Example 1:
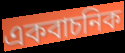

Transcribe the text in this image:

একবাচনিক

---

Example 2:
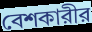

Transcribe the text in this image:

বেশকারীর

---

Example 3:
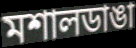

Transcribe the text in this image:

মশালডাঙা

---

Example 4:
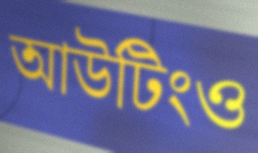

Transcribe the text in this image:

আউটিংও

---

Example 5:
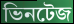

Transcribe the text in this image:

ভিনটেজ